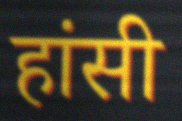
हांसी